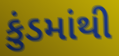
કુંડમાંથી